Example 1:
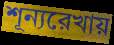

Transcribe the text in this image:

শূন্যরেখায়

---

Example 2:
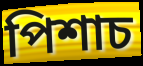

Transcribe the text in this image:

পিশাচ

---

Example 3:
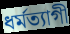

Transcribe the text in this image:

ধর্মত্যাগী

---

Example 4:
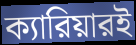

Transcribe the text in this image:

ক্যারিয়ারই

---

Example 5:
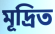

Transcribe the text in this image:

মূদ্রিত